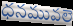
ధనమువలె